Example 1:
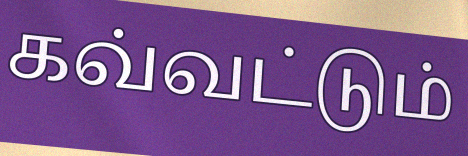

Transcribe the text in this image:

கவ்வட்டும்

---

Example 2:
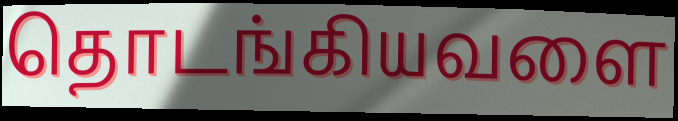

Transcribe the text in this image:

தொடங்கியவளை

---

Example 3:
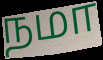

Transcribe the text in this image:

நமா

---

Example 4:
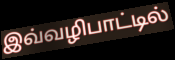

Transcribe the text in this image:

இவ்வழிபாட்டில்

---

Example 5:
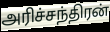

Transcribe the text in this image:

அரிச்சந்திரன்